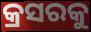
କ୍ରସରକୁ